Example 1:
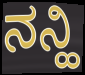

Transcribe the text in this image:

ನನ್ಹಿ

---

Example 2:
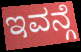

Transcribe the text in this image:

ಇವನ್ಗೆ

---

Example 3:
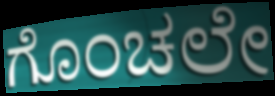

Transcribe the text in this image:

ಗೊಂಚಲೇ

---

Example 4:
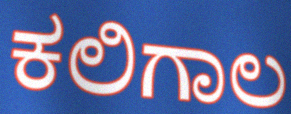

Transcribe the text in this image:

ಕಲಿಗಾಲ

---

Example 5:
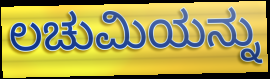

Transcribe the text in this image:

ಲಚುಮಿಯನ್ನು